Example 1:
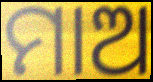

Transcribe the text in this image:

ମାଅ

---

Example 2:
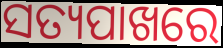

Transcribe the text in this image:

ସତ୍ୟପାଖରେ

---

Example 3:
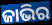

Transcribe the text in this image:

ଜାଭିର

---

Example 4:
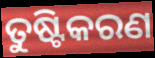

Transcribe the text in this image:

ତୁଷ୍ଟିକରଣ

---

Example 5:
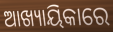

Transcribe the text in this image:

ଆଖ୍ୟାୟିକାରେ